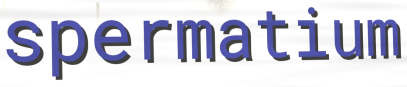
spermatium